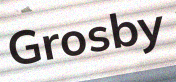
Grosby